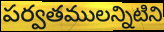
పర్వతములన్నిటిని